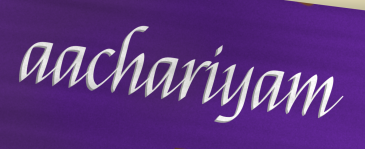
aachariyam